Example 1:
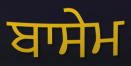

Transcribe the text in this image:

ਬਾਸੇਮ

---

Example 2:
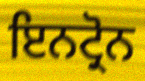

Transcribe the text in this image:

ਇਨਟ੍ਰੋਨ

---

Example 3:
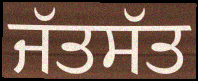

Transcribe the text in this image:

ਜੱਤਸੱਤ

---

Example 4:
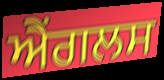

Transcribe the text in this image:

ਐਂਗਲਸ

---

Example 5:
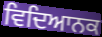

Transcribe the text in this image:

ਵਿਦਿਆਨਕ